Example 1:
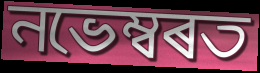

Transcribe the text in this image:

নভেম্বৰত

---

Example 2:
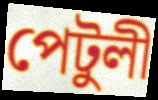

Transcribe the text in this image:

পেটুলী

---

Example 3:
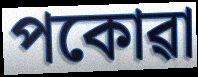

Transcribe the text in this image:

পকোৱা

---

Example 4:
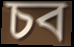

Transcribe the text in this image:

চব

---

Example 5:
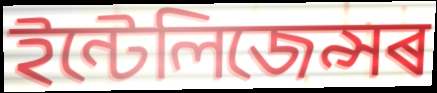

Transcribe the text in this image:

ইন্টেলিজেন্সৰ